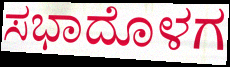
ಸಭಾದೊಳಗ